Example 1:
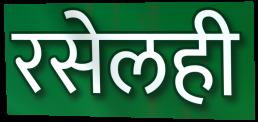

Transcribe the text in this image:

रसेलही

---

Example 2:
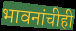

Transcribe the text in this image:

भावनांचीही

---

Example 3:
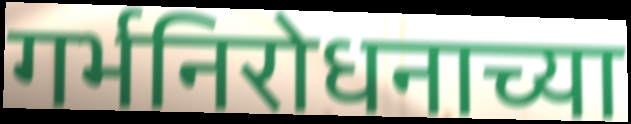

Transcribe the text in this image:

गर्भनिरोधनाच्या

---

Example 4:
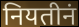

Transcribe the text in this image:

नियतीनं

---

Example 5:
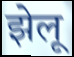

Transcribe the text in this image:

झेलू